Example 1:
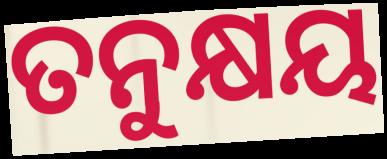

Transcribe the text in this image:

ତନୁକ୍ଷୟ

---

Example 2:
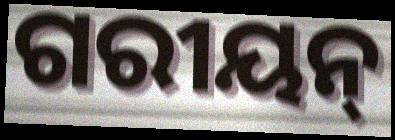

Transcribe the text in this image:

ଗରୀୟନ୍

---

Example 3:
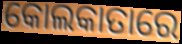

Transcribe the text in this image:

କୋଲକାତାରେ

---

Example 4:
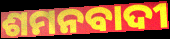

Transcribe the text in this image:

ଶମନବାଦୀ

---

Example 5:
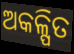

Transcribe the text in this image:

ଅକଳ୍ପିତ